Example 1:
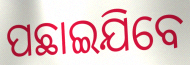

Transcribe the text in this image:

ପଛାଇଯିବେ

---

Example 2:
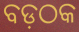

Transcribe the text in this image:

ବଡ଼ଠକ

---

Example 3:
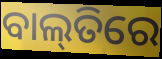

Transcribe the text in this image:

ବାଲ୍‌ତିରେ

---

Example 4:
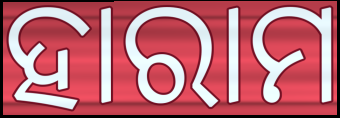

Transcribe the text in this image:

ହାରାମ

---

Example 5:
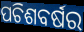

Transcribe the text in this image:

ପଚିଶବର୍ଷର